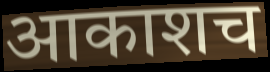
आकाशच